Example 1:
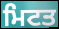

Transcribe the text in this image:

ਮਿਟਤ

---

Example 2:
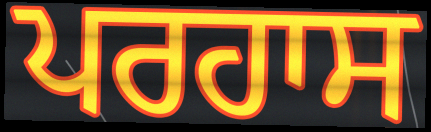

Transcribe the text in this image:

ਪਰਹਾਸ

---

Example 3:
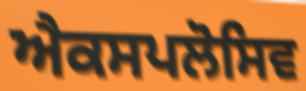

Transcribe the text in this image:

ਐਕਸਪਲੋਸਿਵ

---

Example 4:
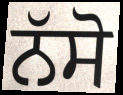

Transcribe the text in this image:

ਨੱਸੋ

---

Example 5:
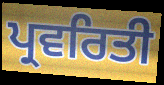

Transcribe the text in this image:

ਪ੍ਰਵਰਿਤੀ